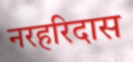
नरहरिदास